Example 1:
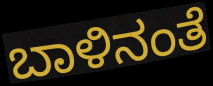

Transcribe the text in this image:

ಬಾಳಿನಂತೆ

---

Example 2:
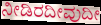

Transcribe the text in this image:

ನೀಡಿರದೀವುದೀ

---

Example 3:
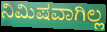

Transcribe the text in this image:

ನಿಮಿಷವಾಗಿಲ್ಲ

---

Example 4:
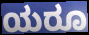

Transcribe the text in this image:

ಯರೂ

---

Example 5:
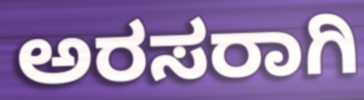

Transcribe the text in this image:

ಅರಸರಾಗಿ